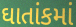
ઘાતાંકમાં